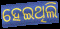
ହେଇଥିଲି